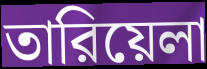
তারিয়েলা